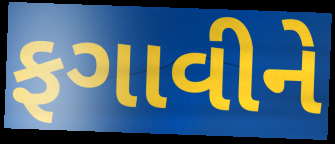
ફગાવીને